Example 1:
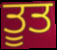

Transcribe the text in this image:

ਤੂਤ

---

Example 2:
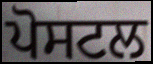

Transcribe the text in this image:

ਪੋਸਟਲ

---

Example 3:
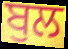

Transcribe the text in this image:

ਬੁਲ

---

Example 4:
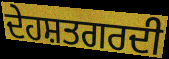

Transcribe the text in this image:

ਦੇਹਸ਼ਤਗਰਦੀ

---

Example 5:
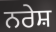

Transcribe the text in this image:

ਨਰੇਸ਼